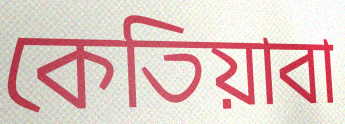
কেতিয়াবা